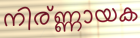
നിര്ണ്ണായക